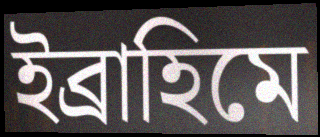
ইব্ৰাহিমে